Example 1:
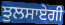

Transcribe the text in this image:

ਝੁਲਸਾਏਗੀ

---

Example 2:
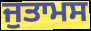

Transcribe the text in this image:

ਜੁਤਾਮਸ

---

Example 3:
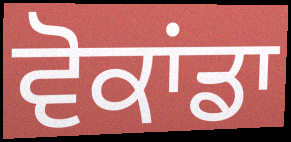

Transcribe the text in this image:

ਵੋਕਾਂਡਾ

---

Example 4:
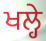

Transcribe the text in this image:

ਖਲ੍ਹੇ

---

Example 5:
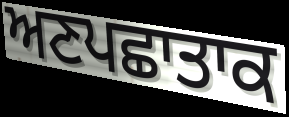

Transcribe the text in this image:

ਅਣਪਛਾਤਾਕ